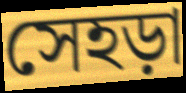
সেহড়া